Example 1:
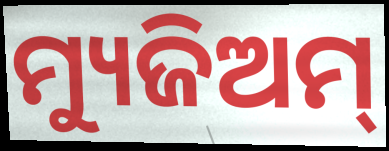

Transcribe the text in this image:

ମ୍ୟୁଜିଅମ୍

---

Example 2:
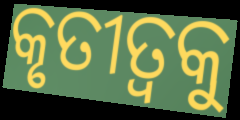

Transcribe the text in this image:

କୃତୀତ୍ଵକୁ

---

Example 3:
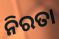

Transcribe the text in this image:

ନିରତା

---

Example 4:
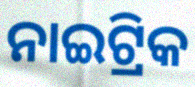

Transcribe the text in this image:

ନାଇଟ୍ରିକ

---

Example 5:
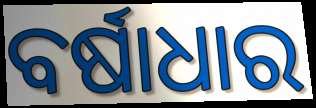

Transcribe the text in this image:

ବର୍ଷାଧାର